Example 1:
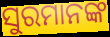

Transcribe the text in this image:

ସୁରମାନଙ୍କ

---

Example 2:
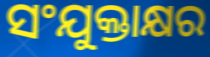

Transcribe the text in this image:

ସଂଯୁକ୍ତାକ୍ଷର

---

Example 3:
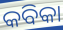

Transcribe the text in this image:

କବିକା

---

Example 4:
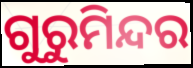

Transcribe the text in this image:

ଗୁରୁମିନ୍ଦର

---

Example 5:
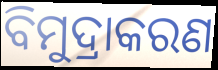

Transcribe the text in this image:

ବିମୁଦ୍ରାକରଣ